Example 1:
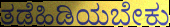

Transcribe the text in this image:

ತಡೆಹಿಡಿಯಬೇಕು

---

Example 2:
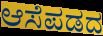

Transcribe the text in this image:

ಆಸೆಪಡದ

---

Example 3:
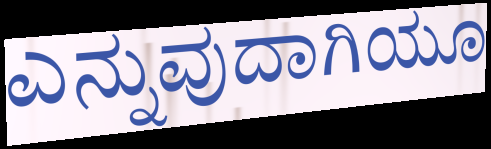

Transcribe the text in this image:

ಎನ್ನುವುದಾಗಿಯೂ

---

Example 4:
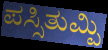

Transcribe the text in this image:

ಪಸ್ಸಿತುಮ್ಪಿ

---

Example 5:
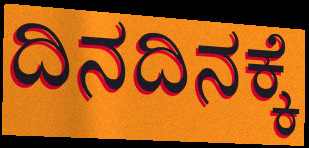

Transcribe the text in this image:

ದಿನದಿನಕ್ಕೆ